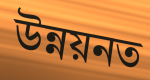
উন্নয়নত